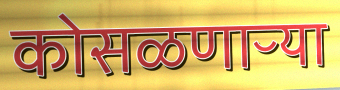
कोसळणाऱ्या